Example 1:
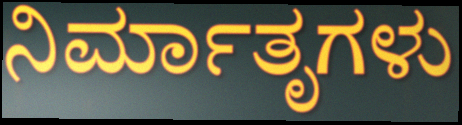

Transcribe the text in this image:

ನಿರ್ಮಾತೃಗಳು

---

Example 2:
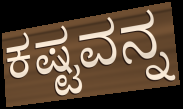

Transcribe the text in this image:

ಕಷ್ಟವನ್ನ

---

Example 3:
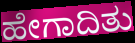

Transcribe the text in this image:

ಹೇಗಾದಿತು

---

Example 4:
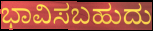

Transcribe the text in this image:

ಭಾವಿಸಬಹುದು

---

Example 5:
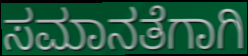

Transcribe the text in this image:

ಸಮಾನತೆಗಾಗಿ